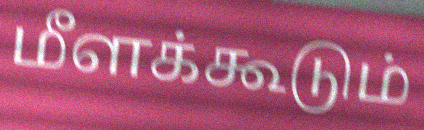
மீளக்கூடும்